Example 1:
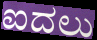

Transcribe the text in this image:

ಐದಲು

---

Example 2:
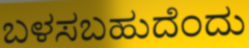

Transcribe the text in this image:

ಬಳಸಬಹುದೆಂದು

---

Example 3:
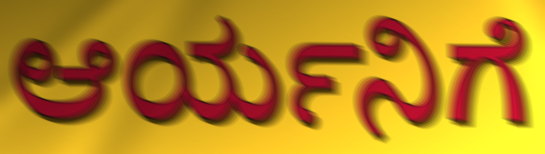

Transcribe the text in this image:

ಆರ್ಯನಿಗೆ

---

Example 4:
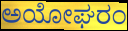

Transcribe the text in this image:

ಅಯೋಘರಂ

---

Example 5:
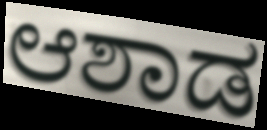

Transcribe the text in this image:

ಆಶಾಡ